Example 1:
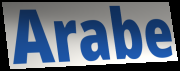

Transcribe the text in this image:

Arabe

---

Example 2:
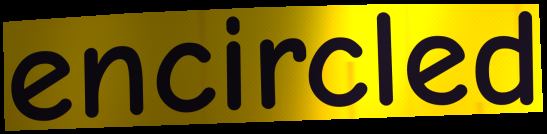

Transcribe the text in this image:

encircled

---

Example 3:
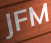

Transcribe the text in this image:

JFM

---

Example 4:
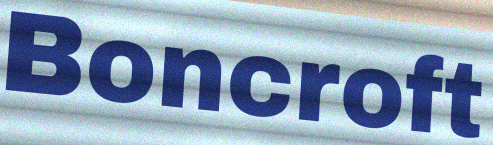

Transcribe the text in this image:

Boncroft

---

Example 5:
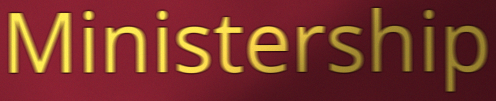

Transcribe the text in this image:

Ministership